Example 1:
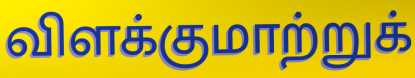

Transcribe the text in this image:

விளக்குமாற்றுக்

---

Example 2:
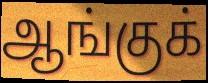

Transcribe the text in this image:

ஆங்குக்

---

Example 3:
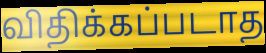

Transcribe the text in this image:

விதிக்கப்படாத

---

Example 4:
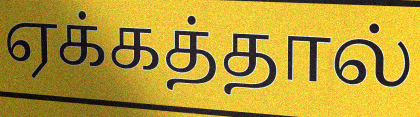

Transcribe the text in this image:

ஏக்கத்தால்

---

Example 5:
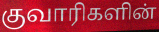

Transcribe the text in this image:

குவாரிகளின்